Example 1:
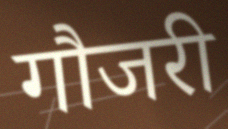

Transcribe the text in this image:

गौजरी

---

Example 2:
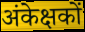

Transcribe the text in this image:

अंकेक्षकों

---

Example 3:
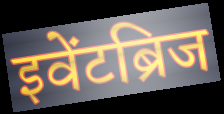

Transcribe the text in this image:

इवेंटब्रिज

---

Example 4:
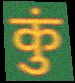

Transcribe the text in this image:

कुं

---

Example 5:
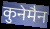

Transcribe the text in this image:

कुनेमैन